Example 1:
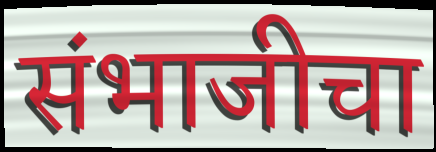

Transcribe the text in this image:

संभाजीचा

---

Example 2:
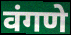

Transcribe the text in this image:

वंगणे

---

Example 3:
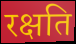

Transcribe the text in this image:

रक्षति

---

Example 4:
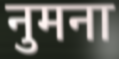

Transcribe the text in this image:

नुमना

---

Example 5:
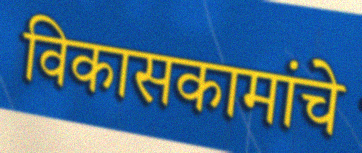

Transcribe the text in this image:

विकासकामांचे